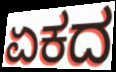
ಏಕದ